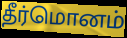
தீர்மொனம்